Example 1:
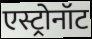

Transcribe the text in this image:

एस्ट्रोनॉट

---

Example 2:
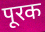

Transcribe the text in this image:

पूरक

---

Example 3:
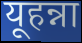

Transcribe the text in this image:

यूहन्ना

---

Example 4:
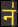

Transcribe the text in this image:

न॑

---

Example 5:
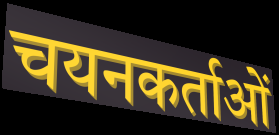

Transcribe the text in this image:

चयनकर्ताओं